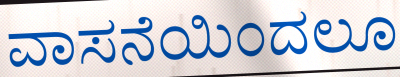
ವಾಸನೆಯಿಂದಲೂ